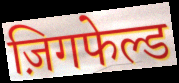
ज़िगफेल्ड